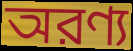
অরণ্য